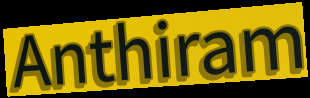
Anthiram